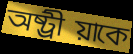
অষ্ট্রীয়াকে